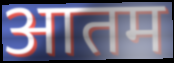
आतम